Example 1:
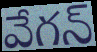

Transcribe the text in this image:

వేగన్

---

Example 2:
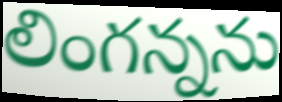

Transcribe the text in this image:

లింగన్నను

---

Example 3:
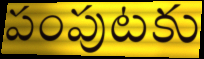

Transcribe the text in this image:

పంపుటకు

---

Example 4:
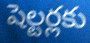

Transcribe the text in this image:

షెల్టర్లకు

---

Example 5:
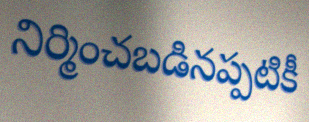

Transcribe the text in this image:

నిర్మించబడినప్పటికీ